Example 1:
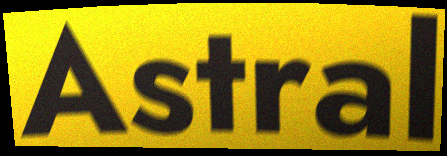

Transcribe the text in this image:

Astral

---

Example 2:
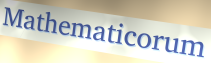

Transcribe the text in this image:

Mathematicorum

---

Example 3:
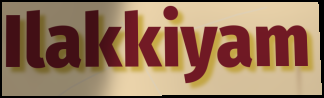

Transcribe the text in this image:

Ilakkiyam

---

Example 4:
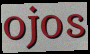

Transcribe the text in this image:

ojos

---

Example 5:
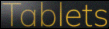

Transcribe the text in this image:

Tablets